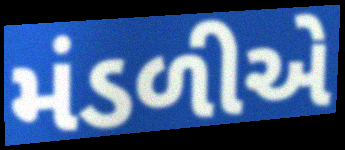
મંડળીએ